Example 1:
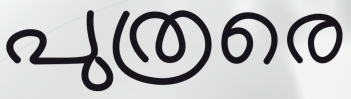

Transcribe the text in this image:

പുത്രരെ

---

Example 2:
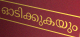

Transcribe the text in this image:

ഓടിക്കുകയും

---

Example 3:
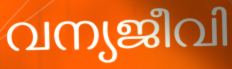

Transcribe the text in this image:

വന്യജീവി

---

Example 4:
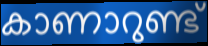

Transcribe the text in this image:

കാണാറുണ്ട്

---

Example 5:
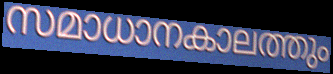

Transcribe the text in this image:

സമാധാനകാലത്തും